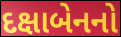
દક્ષાબેનનો